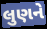
લુણને